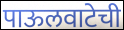
पाऊलवाटेची